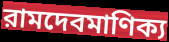
রামদেবমাণিক্য